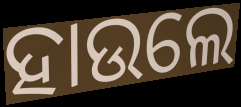
ହାଉଲେ